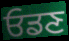
ਓਡਣ